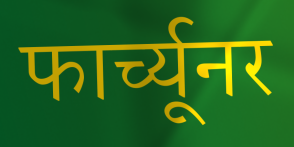
फार्च्यूनर